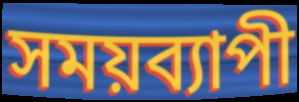
সময়ব্যাপী